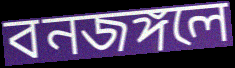
বনজঙ্গলে